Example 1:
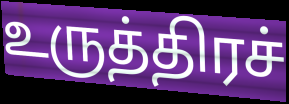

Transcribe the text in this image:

உருத்திரச்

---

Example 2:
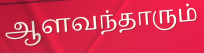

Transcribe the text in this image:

ஆளவந்தாரும்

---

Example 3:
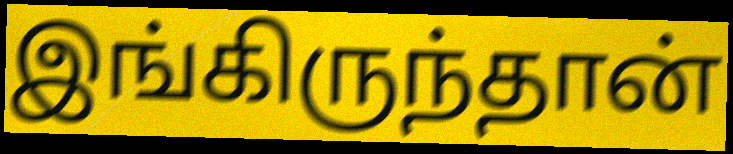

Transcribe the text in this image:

இங்கிருந்தான்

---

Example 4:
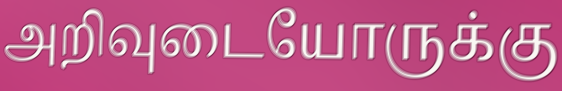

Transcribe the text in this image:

அறிவுடையோருக்கு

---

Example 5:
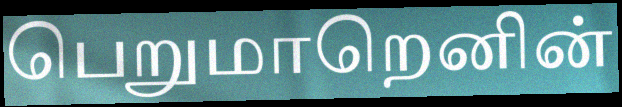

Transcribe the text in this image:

பெறுமாறெனின்